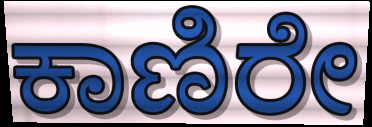
ಕಾಣಿರೇ